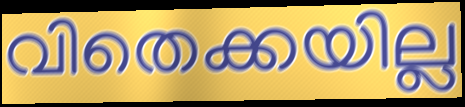
വിതെക്കയില്ല